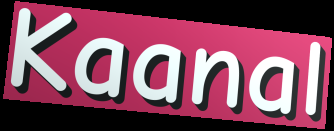
Kaanal